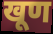
खूण